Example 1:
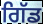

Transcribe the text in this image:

ਗਿੱਡ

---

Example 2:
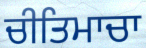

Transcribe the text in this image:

ਚੀਤਿਮਾਚਾ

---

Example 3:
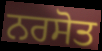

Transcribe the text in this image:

ਨਰਸੋਤ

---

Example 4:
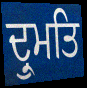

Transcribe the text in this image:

ਦ੍ਰੁਮਤਿ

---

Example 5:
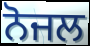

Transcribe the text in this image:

ਨੋਜਲ